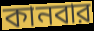
কানবার